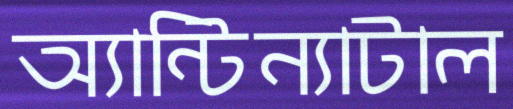
অ্যান্টিন্যাটাল